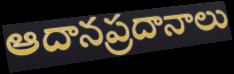
ఆదానప్రదానాలు